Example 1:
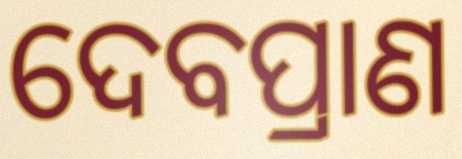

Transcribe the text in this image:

ଦେବପ୍ରାଣ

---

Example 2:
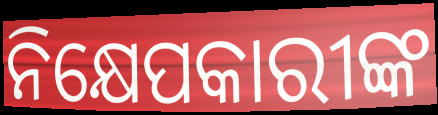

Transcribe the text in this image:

ନିକ୍ଷେପକାରୀଙ୍କ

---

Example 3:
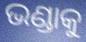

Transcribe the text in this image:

ଭଣ୍ଡାକୁ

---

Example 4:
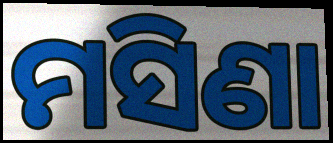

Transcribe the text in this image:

ମସିଣା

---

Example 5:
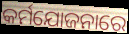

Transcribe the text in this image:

କର୍ମଯୋଜନାରେ